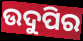
ଉଦୁପିର